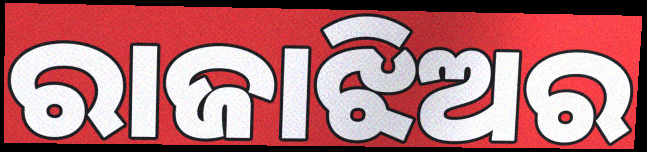
ରାଜାଝିଅର